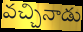
వచ్చినాడు